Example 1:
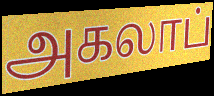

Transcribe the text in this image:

அகலாப்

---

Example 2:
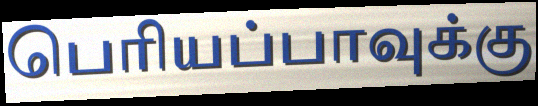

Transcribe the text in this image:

பெரியப்பாவுக்கு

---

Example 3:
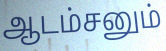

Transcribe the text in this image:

ஆடம்சனும்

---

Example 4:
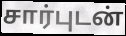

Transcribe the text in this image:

சார்புடன்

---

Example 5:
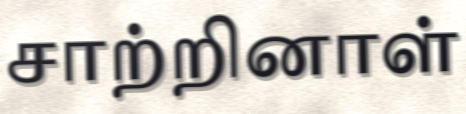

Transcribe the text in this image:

சாற்றினாள்